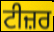
ਟੀਜ਼ਰ